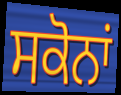
ਸਕੋਨਾਂ